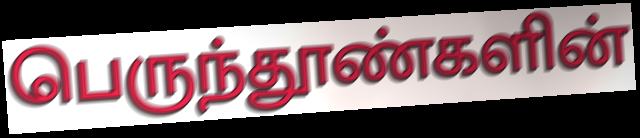
பெருந்தூண்களின்